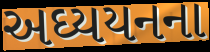
અઘ્યયનના